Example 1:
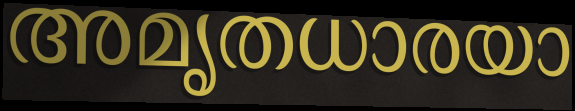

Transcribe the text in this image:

അമൃതധാരയാ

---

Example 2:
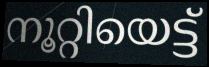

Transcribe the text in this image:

നൂറ്റിയെട്ട്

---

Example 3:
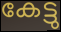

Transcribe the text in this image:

കേട്ടു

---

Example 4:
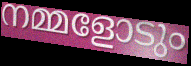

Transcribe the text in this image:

നമ്മളോടും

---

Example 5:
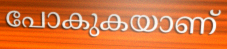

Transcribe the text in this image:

പോകുകയാണ്